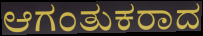
ಆಗಂತುಕರಾದ